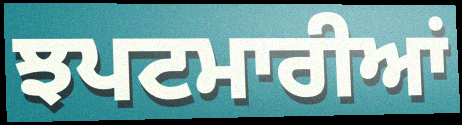
ਝਪਟਮਾਰੀਆਂ